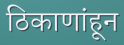
ठिकाणांहून